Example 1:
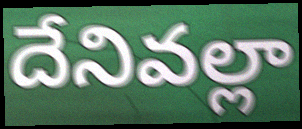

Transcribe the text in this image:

దేనివల్లా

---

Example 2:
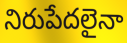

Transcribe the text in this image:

నిరుపేదలైనా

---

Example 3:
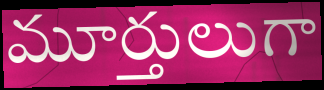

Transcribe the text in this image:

మూర్తులుగా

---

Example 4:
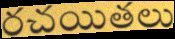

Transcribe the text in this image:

రచయితలు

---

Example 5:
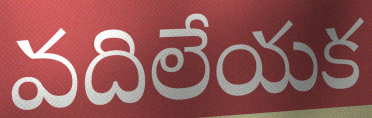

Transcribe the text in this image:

వదిలేయక